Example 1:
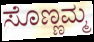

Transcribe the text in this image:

ಸೊಣ್ಣಮ್ಮ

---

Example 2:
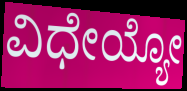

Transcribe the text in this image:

ವಿಧೇಯ್ಯೋ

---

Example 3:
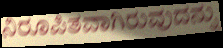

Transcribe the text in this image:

ನಿರೂಪಿತವಾಗಿರುವುದನ್ನು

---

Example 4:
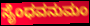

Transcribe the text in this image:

ಸೈಂಧವನುಮಂ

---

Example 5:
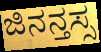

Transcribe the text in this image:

ಜಿನನ್ತಸ್ಸ